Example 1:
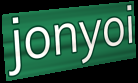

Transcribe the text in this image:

jonyoi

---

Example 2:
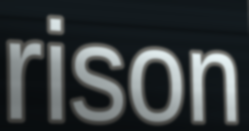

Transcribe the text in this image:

rison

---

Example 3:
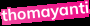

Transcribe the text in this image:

thomayanti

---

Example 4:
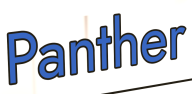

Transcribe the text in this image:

Panther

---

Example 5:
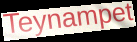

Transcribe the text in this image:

Teynampet